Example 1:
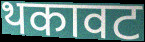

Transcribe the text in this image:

थकावट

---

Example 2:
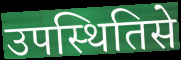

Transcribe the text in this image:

उपस्थितिसे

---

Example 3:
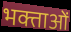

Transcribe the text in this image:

भक्ताओं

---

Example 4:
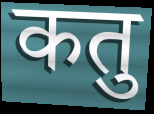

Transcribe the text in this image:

कतु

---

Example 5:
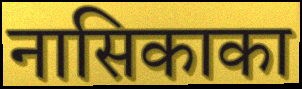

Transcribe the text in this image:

नासिकाका